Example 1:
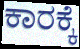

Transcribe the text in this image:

ಕಾರಕ್ಕೆ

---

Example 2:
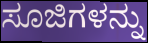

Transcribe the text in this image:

ಸೂಜಿಗಳನ್ನು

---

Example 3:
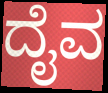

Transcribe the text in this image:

ದೈವ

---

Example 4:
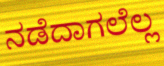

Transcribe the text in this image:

ನಡೆದಾಗಲೆಲ್ಲ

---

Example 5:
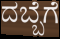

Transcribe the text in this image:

ದಬ್ಬೆಗೆ